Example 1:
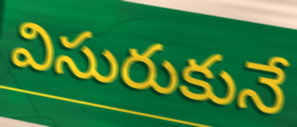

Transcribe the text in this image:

విసురుకునే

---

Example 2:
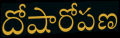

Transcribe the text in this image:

దోషారోపణ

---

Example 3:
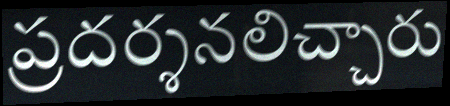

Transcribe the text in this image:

ప్రదర్శనలిచ్చారు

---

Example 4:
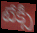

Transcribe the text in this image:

టేక్సీ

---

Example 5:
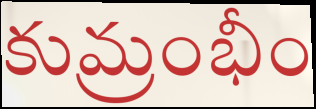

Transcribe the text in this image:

కుమ్రంభీం